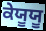
ਕੇਯੂਯੂ